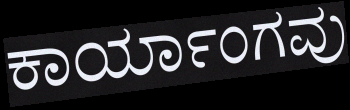
ಕಾರ್ಯಾಂಗವು